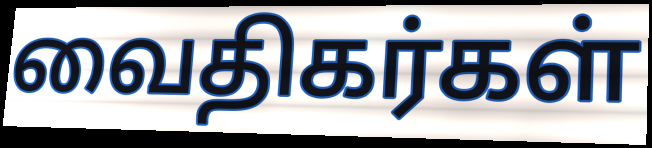
வைதிகர்கள்